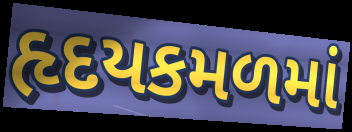
હૃદયકમળમાં